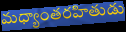
మధ్యాంతరహితుడు